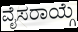
ವೈಸರಾಯ್ಗೆ